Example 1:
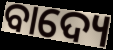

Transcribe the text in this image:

ବାଦ୍ୟେ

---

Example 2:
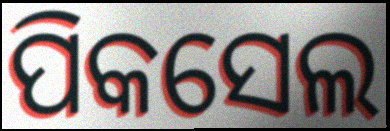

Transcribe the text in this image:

ପିକସେଲ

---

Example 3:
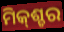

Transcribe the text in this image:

ମିକ୍‌ଶ୍ଚର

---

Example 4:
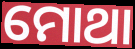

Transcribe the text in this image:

ମୋଥା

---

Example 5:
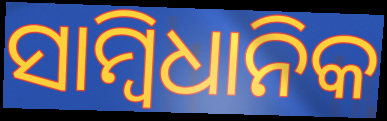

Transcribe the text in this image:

ସାମ୍ବିଧାନିକ